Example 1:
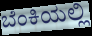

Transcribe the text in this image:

ಬೆಂಕಿಯಲ್ಲಿ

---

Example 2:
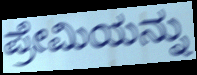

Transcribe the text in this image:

ಪ್ರೇಮಿಯನ್ನು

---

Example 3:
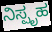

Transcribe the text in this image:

ನಿಸ್ಪೃಹ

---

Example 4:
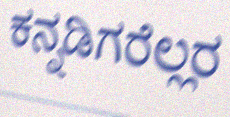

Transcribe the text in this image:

ಕನ್ನಡಿಗರೆಲ್ಲರ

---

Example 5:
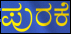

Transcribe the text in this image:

ಪುರಕೆ